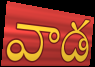
వాడ